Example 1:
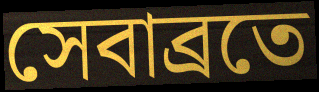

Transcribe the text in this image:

সেবাব্রতে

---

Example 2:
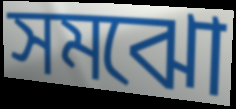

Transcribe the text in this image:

সমঝো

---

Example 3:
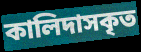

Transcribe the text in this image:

কালিদাসকৃত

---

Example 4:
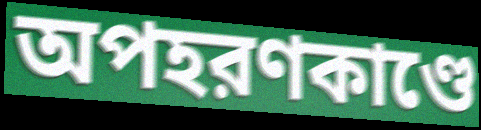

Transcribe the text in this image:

অপহরণকাণ্ডে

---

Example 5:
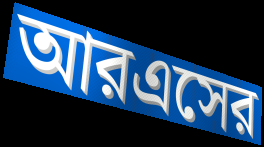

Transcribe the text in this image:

আরএসের